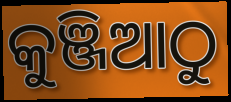
କୁଞ୍ଜିଆଠୁ